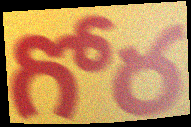
గోర